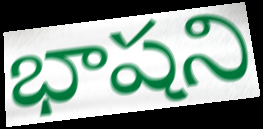
భాషని